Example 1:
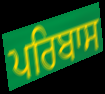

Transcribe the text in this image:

ਪਰਿਬਾਸ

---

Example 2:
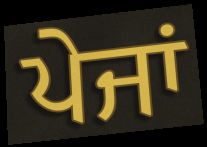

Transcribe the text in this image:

ਪੇਜਾਂ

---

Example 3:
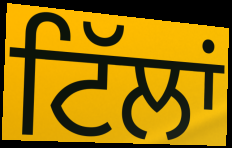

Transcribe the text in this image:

ਟਿੱਲਾਂ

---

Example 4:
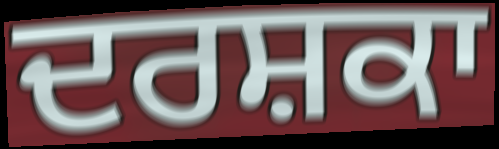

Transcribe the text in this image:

ਦਰਸ਼ਕਾ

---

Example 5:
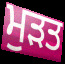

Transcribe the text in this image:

ਮੁੜਤ